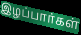
இழப்பார்கள்